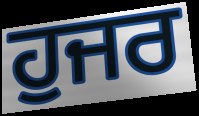
ਹੁਜਰ